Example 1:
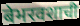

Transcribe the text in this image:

बेभरवशाची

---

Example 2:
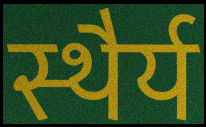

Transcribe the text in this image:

स्थैर्य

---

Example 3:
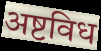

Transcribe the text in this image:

अष्टविध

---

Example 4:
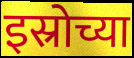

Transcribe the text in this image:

इस्रोच्या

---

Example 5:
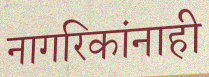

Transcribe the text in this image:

नागरिकांनाही